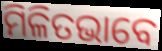
ମିଳିତଭାବେ